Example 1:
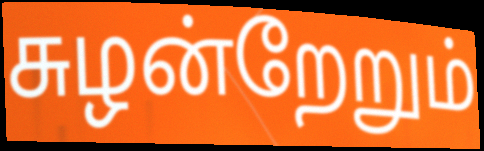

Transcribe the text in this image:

சுழன்றேறும்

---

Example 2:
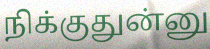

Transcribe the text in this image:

நிக்குதுன்னு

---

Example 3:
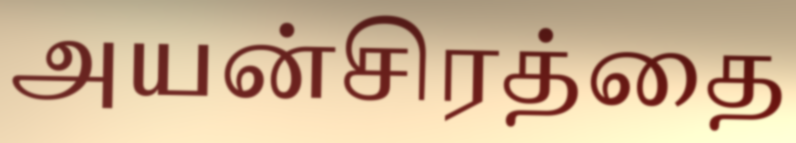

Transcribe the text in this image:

அயன்சிரத்தை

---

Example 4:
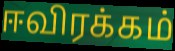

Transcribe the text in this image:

ஈவிரக்கம்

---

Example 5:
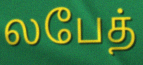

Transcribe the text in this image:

லபேத்